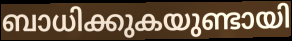
ബാധിക്കുകയുണ്ടായി